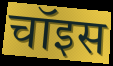
चॉइस